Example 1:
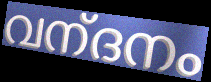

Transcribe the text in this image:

വന്‌ദനം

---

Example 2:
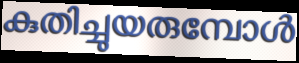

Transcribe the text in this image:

കുതിച്ചുയരുമ്പോൾ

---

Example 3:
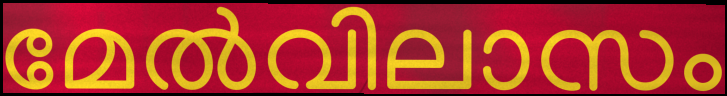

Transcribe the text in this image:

മേൽവിലാസം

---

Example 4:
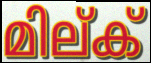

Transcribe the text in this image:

മില്ക്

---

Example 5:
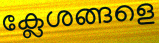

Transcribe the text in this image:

ക്ലേശങ്ങളെ